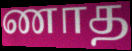
ணாத